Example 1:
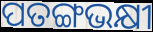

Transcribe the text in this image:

ପତଙ୍ଗଭକ୍ଷୀ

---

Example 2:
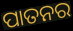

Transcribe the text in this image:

ପାତନର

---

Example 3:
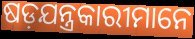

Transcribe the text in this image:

ଷଡ଼ଯନ୍ତ୍ରକାରୀମାନେ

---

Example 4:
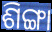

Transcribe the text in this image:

ଶିଙ୍ଗା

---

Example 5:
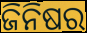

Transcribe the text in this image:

ଜିନିଷର